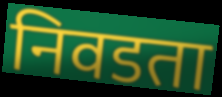
निवडता